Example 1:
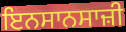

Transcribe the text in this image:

ਇਨਸਾਨਸਾਜ਼ੀ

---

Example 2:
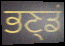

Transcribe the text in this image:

ਭਣ੍ਡਂ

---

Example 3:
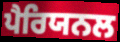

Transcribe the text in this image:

ਪੈਰਿਯਨਲ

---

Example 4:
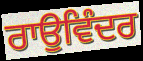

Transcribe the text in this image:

ਰਾਉਵਿੰਦਰ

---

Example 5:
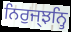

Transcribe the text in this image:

ਨਿਰੁਜ੍ਝਨ੍ਤਿ